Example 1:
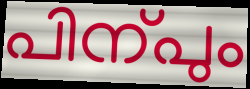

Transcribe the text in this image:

പിന്പും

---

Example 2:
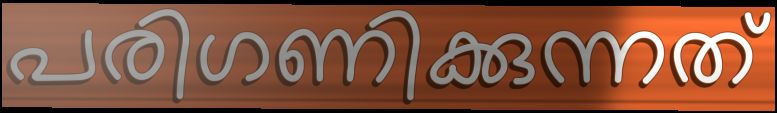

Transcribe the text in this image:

പരിഗണിക്കുന്നത്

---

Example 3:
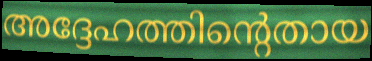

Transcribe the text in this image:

അദ്ദേഹത്തിന്റെതായ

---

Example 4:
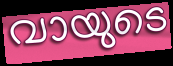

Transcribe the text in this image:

വായുടെ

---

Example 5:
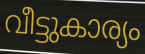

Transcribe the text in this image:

വീട്ടുകാര്യം